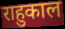
राहुकाल